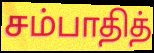
சம்பாதித்